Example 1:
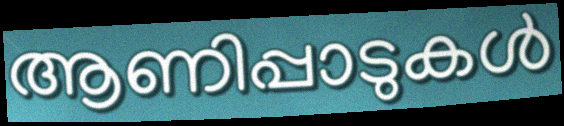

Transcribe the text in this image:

ആണിപ്പാടുകൾ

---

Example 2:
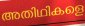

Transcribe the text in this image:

അതിഥികളെ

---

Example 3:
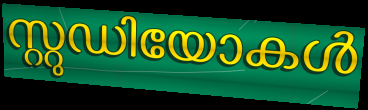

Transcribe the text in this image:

സ്റ്റുഡിയോകൾ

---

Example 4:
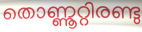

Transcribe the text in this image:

തൊണ്ണൂറ്റിരണ്ടു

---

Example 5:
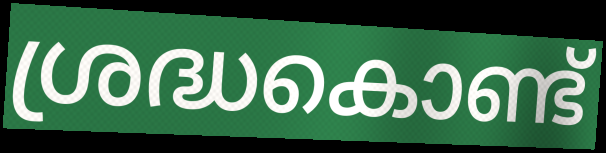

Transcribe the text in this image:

ശ്രദ്ധകൊണ്ട്